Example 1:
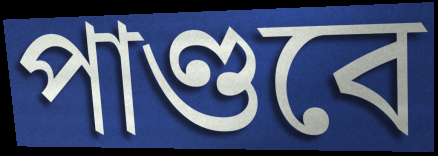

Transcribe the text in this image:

পাণ্ডবে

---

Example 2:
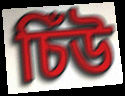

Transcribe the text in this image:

চিঁউ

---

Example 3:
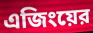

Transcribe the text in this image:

এজিংয়ের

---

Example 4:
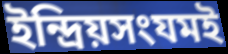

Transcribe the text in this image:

ইন্দ্রিয়সংযমই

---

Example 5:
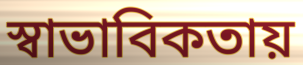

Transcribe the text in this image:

স্বাভাবিকতায়